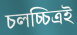
চলচ্চিত্ৰই